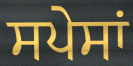
ਸਪੇਸਾਂ